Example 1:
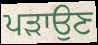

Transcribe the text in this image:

ਪੜਾਉਣ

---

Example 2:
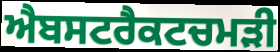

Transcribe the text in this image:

ਐਬਸਟਰੈਕਟਚਮੜੀ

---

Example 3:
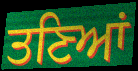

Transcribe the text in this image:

ਤਣਿਆਂ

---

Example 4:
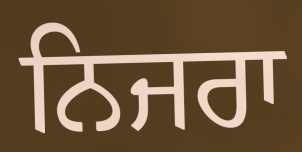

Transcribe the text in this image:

ਨਿਜਰਾ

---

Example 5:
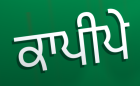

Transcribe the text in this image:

ਕਾਪੀਪੇ